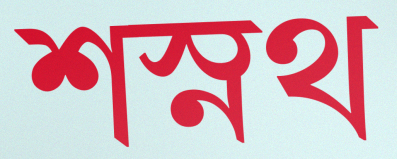
শস্নথ